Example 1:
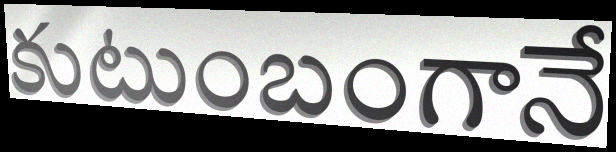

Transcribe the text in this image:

కుటుంబంగానే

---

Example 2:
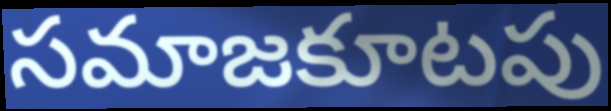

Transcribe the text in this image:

సమాజకూటపు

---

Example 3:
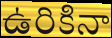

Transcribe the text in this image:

ఉరికినా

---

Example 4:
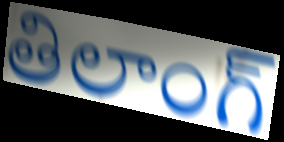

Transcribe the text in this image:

తిలాంగ్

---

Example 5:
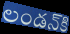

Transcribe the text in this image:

లండన్‌కి